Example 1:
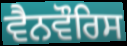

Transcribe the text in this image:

ਵੈਨਵੌਰਿਸ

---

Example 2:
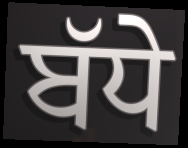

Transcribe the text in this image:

ਬੱਧੇ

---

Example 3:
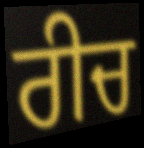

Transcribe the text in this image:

ਰੀਚ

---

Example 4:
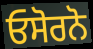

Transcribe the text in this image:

ਓਸੋਰਨੋ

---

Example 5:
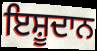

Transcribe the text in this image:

ਇਸ਼ੂਦਾਨ